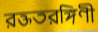
রক্ততরঙ্গিণী